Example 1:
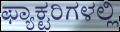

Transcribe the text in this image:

ಫ್ಯಾಕ್ಟರಿಗಳಲ್ಲಿ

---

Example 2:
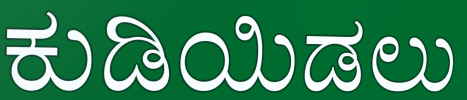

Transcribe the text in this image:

ಕುಡಿಯಿಡಲು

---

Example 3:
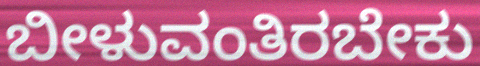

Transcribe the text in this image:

ಬೀಳುವಂತಿರಬೇಕು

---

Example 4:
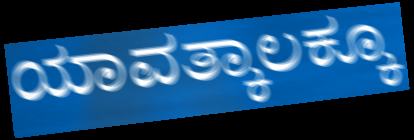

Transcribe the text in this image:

ಯಾವತ್ಕಾಲಕ್ಕೂ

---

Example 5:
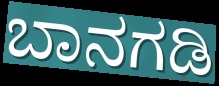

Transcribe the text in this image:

ಬಾನಗಡಿ